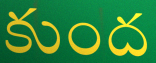
కుంద